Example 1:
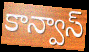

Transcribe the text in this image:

కాన్వాస్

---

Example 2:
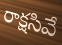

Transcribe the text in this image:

రాక్షసివే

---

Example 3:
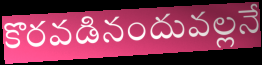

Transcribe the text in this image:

కొరవడినందువల్లనే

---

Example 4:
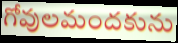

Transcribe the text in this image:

గోవులమందకును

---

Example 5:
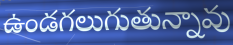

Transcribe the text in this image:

ఉండగలుగుతున్నావు